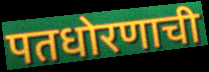
पतधोरणाची